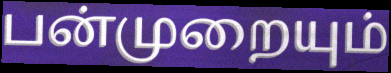
பன்முறையும்